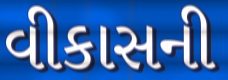
વીકાસની